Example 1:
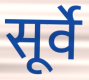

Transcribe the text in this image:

सूर्वे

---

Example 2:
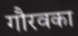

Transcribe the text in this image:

गौरवका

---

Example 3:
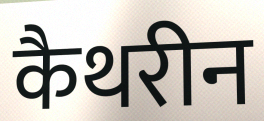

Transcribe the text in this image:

कैथरीन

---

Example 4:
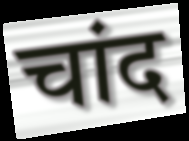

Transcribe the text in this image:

चांद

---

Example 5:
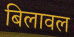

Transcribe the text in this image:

बिलावल